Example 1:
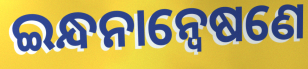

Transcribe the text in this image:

ଇନ୍ଧନାନ୍ଵେଷଣେ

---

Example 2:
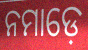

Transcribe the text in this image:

ନମାଡ଼େ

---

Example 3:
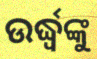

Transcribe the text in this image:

ଉର୍ଦ୍ଧ୍ୱଙ୍କୁ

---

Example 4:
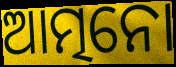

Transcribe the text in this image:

ଆତ୍ମନୋ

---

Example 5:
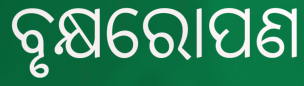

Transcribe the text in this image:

ବୃକ୍ଷରୋପଣ